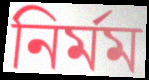
নির্মম